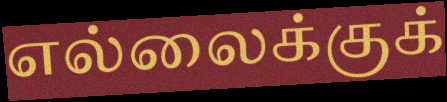
எல்லைக்குக்